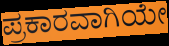
ಪ್ರಕಾರವಾಗಿಯೇ